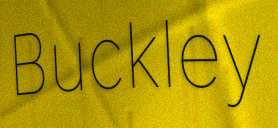
Buckley